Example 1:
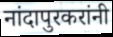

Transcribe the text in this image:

नांदापुरकरांनी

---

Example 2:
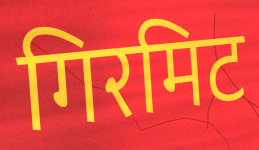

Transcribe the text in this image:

गिरमिट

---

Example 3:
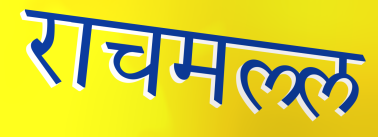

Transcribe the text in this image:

राचमल्ल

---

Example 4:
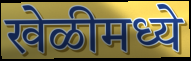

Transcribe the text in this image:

खेळीमध्ये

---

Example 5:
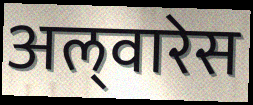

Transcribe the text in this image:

अल्वारेस